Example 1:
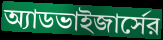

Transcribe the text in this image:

অ্যাডভাইজার্সের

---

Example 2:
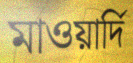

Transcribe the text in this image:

মাওয়ার্দি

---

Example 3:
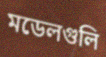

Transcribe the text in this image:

মডেলগুলি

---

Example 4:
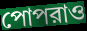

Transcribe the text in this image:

পোপরাও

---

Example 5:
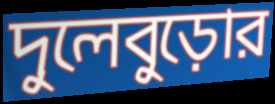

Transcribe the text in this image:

দুলেবুড়োর